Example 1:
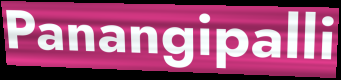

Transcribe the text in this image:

Panangipalli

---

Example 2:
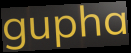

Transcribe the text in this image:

gupha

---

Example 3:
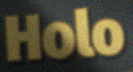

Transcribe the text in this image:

Holo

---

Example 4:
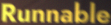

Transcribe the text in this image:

Runnable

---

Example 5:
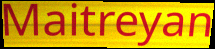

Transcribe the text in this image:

Maitreyan